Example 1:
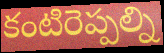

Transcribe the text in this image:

కంటిరెప్పల్ని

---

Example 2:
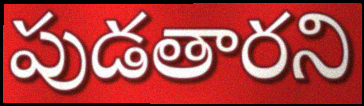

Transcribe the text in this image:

పుడతారని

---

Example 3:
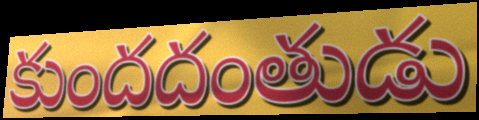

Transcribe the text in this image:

కుందదంతుడు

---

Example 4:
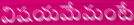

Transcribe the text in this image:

విషయమేమంటే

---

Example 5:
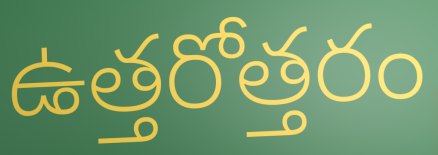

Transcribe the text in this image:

ఉత్తరోత్తరం